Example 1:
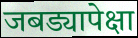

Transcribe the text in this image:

जबड्यापेक्षा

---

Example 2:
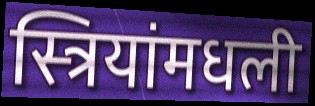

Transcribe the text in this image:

स्त्रियांमधली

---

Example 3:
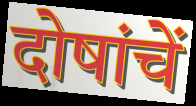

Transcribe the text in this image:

दोषांचें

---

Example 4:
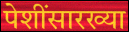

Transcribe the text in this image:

पेशींसारख्या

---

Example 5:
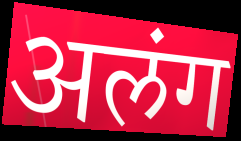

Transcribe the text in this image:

अलंग